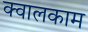
क्वालकाम